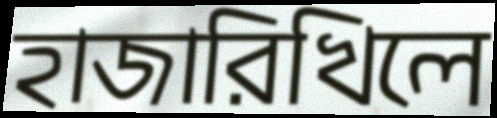
হাজারিখিলে